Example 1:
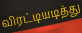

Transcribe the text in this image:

விரட்டியடித்து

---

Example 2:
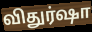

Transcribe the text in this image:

விதுர்ஷா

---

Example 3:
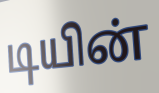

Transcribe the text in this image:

டியின்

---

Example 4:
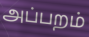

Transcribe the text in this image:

அப்பறம்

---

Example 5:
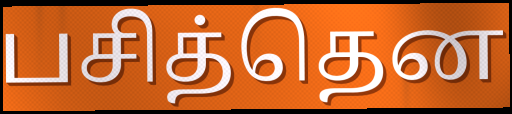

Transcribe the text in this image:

பசித்தென